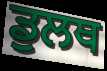
ਡੁਲਥ